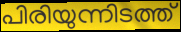
പിരിയുന്നിടത്ത്